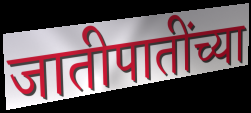
जातीपातींच्या